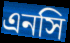
এনসি